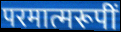
परमात्मरूपीं